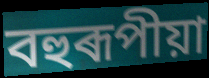
বহুৰূপীয়া